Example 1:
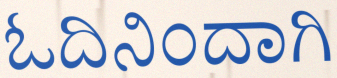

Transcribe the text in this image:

ಓದಿನಿಂದಾಗಿ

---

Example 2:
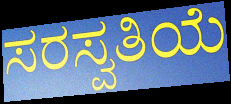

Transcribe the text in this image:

ಸರಸ್ವತಿಯೆ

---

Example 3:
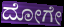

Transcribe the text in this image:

ದೋಗೇ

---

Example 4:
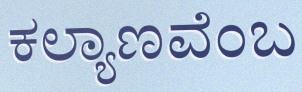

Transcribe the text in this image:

ಕಲ್ಯಾಣವೆಂಬ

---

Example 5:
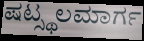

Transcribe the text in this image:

ಷಟ್ಸ್ಥಲಮಾರ್ಗ